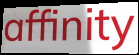
affinity